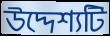
উদ্দেশ্যটি